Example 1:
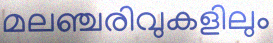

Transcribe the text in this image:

മലഞ്ചരിവുകളിലും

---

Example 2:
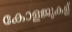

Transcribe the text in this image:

കോളജുകള്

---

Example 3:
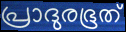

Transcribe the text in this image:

പ്രാദുരഭൂത്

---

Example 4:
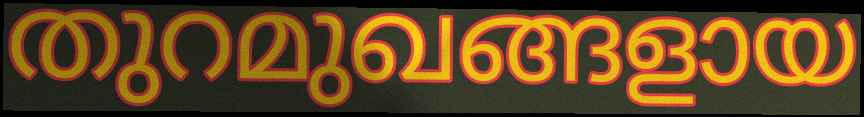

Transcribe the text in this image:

തുറമുഖങ്ങളായ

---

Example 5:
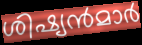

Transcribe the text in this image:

ശിഷ്യൻമാർ